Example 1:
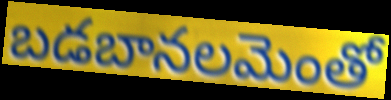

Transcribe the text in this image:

బడబానలమెంతో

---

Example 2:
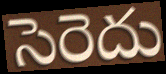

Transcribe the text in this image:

సెరెదు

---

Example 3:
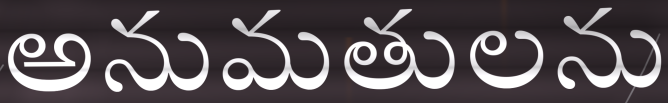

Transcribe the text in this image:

అనుమతులను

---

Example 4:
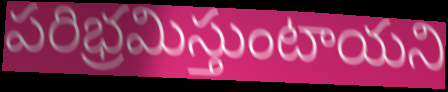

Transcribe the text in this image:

పరిభ్రమిస్తుంటాయని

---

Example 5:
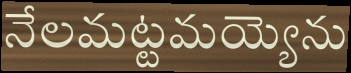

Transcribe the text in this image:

నేలమట్టమయ్యెను